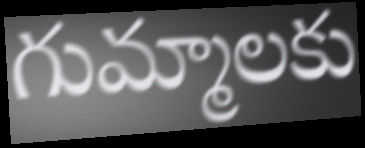
గుమ్మాలకు